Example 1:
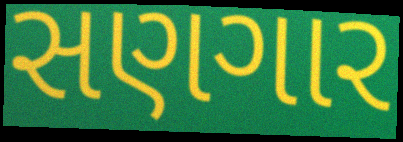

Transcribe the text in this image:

સણગાર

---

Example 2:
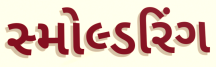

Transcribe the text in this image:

સ્મોલ્ડરિંગ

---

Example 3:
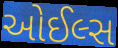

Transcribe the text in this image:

ઓઈલ્સ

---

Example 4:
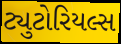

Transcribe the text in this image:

ટ્યુટોરિયલ્સ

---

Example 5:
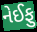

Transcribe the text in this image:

નેઈફુ